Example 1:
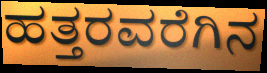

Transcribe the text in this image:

ಹತ್ತರವರೆಗಿನ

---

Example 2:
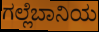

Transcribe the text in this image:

ಗಲ್ಲೆಬಾನಿಯ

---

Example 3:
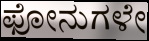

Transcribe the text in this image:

ಫೋನುಗಳೇ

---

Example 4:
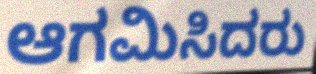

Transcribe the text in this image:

ಆಗಮಿಸಿದರು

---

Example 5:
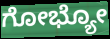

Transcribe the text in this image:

ಗೋಭ್ಯೋ